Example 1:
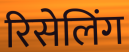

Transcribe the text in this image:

रिसेलिंग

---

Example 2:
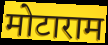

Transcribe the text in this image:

मोटाराम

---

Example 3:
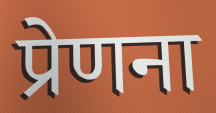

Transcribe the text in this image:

प्रेणना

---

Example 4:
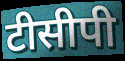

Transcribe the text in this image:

टीसीपी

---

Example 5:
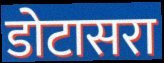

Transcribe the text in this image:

डोटासरा